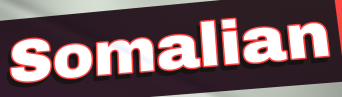
Somalian